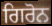
ਗਿਰੋਨ